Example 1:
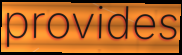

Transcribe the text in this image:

provides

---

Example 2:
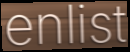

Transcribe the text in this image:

enlist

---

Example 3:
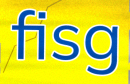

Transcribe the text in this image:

fisg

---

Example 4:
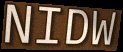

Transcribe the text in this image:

NIDW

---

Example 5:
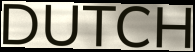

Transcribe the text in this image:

DUTCH